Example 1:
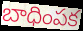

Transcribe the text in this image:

బాధింపక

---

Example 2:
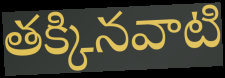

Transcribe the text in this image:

తక్కినవాటి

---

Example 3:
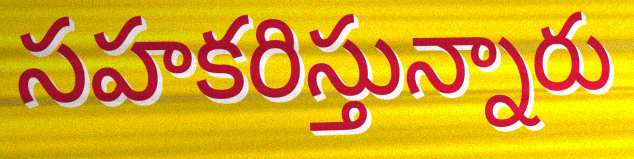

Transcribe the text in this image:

సహకరిస్తున్నారు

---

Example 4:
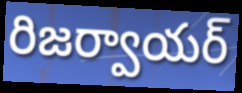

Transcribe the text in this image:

రిజర్వాయర్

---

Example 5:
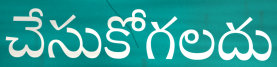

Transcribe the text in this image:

చేసుకోగలదు